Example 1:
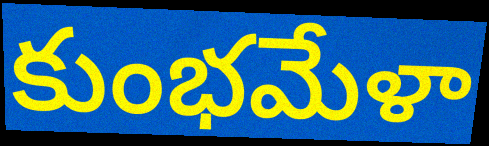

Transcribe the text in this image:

కుంభమేళా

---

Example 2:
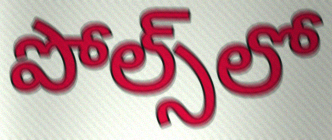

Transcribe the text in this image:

పోల్స్‌లో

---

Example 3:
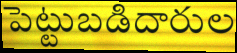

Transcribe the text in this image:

పెట్టుబడిదారుల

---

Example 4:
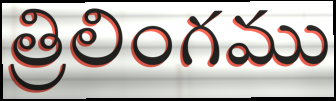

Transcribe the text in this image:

త్రిలింగము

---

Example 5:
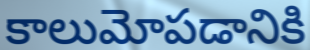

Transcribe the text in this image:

కాలుమోపడానికి